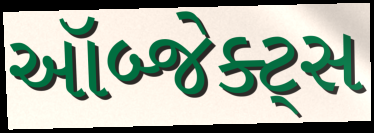
ઑબ્જેક્ટ્સ